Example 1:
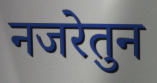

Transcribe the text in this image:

नजरेतुन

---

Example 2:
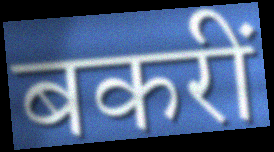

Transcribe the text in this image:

बकरीं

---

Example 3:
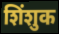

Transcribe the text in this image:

शिंशुक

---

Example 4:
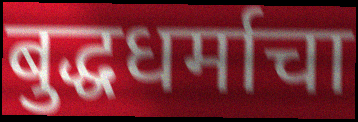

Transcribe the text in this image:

बुद्धधर्माचा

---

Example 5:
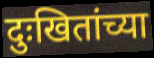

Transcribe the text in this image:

दुःखितांच्या